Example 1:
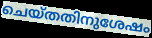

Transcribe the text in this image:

ചെയ്തതിനുശേഷം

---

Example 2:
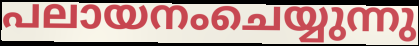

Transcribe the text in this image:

പലായനംചെയ്യുന്നു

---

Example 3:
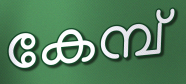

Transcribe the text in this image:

കേമ്പ്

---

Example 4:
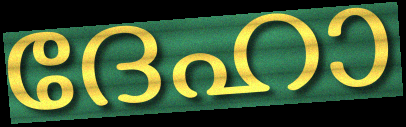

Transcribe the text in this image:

ദേഹാ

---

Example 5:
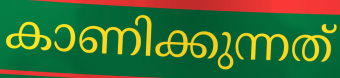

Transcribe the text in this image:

കാണിക്കുന്നത്